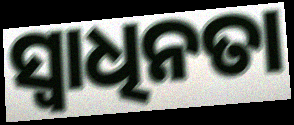
ସ୍ୱାଧିନତା